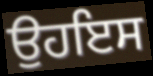
ਉਹਇਸ